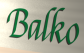
Balko